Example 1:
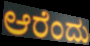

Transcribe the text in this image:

ಆರೆಂದು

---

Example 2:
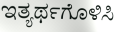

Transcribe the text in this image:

ಇತ್ಯರ್ಥಗೊಳಿಸಿ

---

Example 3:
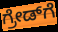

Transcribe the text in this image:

ಗ್ರೇಡ್‌ಗೆ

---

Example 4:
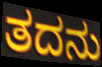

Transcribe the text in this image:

ತದನು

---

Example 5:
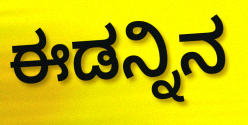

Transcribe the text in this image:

ಈಡನ್ನಿನ